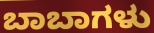
ಬಾಬಾಗಳು